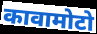
कावामोटो